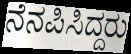
ನೆನಪಿಸಿದ್ದರು